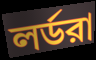
লর্ডরা